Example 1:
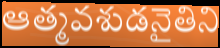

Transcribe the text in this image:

ఆత్మవశుడనైతిని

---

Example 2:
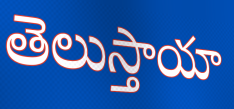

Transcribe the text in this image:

తెలుస్తాయా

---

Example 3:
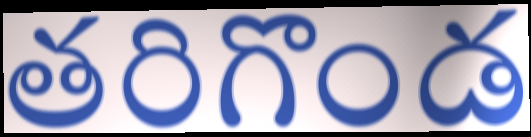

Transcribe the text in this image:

తరిగొండ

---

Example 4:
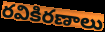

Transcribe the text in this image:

రవికిరణాలు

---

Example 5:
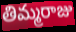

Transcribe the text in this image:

తిమ్మరాజు